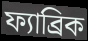
ফ্যাব্রিক